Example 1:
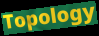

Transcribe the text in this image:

Topology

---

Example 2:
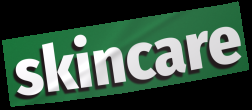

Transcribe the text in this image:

skincare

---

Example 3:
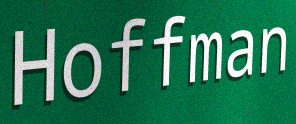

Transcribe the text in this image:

Hoffman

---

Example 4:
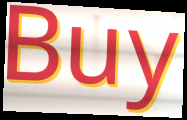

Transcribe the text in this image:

Buy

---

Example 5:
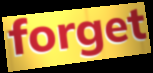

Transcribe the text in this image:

forget